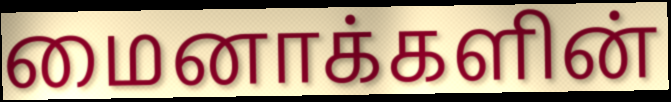
மைனாக்களின்